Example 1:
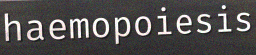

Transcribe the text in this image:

haemopoiesis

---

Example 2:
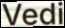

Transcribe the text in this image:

Vedi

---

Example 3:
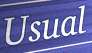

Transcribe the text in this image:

Usual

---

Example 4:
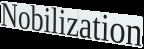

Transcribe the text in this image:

Nobilization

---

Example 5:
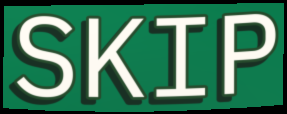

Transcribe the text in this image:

SKIP